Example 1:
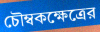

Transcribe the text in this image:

চৌম্বকক্ষেত্রের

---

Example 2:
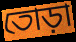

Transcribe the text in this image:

তোড়া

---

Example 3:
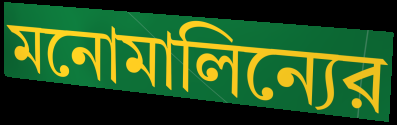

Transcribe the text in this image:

মনোমালিন্যের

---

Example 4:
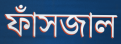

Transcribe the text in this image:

ফাঁসজাল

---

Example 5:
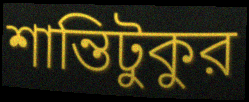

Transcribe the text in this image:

শান্তিটুকুর